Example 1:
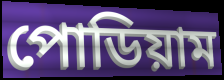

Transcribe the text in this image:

পোডিয়াম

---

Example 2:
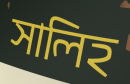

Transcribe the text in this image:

সালিহ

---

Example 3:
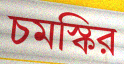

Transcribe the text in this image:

চমস্কির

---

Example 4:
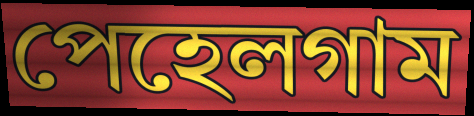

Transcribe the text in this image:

পেহেলগাম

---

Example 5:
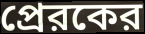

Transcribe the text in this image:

প্রেরকের